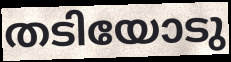
തടിയോടു